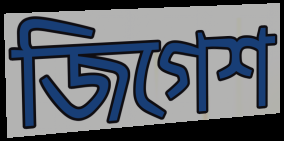
জিগেশ